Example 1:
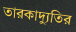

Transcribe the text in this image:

তারকাদ্যুতির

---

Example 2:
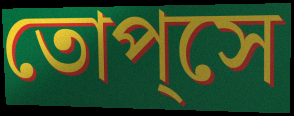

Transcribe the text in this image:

তোপ্‌সে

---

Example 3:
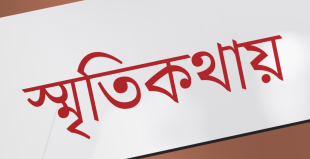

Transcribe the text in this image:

স্মৃতিকথায়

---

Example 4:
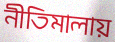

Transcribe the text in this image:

নীতিমালায়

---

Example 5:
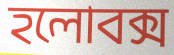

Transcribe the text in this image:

হলোবক্স